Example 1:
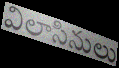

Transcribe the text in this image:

విలాసినులు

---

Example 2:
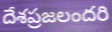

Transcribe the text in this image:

దేశప్రజలందరి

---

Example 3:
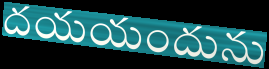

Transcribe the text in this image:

దయయందును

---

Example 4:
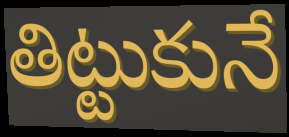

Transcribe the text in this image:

తిట్టుకునే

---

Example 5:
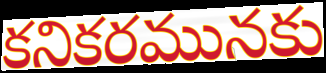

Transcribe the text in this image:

కనికరమునకు